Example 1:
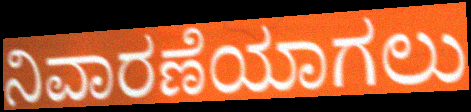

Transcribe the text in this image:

ನಿವಾರಣೆಯಾಗಲು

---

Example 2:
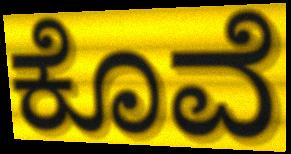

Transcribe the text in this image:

ಕೊವೆ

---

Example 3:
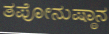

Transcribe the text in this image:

ತಪೋನುಷ್ಠಾನ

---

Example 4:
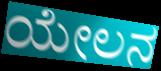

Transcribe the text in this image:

ಯೇಲನ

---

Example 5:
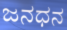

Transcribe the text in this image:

ಜನಧನ